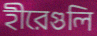
হীরেগুলি